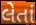
લેતાં